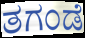
ತಗಂಡೆ